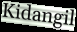
Kidangil